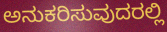
ಅನುಕರಿಸುವುದರಲ್ಲಿ